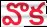
వొక